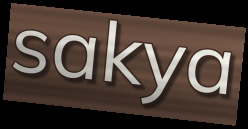
sakya